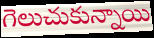
గెలుచుకున్నాయి